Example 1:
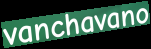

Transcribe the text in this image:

vanchavano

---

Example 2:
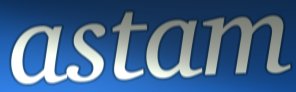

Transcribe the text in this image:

astam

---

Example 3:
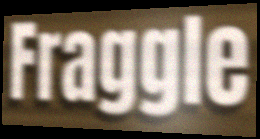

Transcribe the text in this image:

Fraggle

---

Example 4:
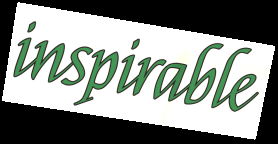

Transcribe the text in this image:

inspirable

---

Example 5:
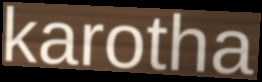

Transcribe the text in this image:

karotha